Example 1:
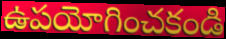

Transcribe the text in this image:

ఉపయోగించకండి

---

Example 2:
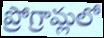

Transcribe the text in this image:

ప్రోగ్రామ్లలో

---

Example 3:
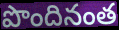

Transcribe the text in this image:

పొందినంత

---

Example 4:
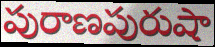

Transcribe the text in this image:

పురాణపురుషా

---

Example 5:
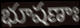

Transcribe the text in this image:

భూషణాః